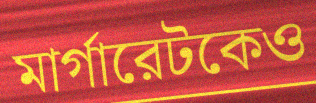
মার্গারেটকেও